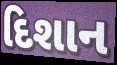
દિશાન